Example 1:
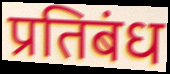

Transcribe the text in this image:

प्रतिबंध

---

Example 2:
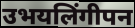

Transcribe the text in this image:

उभयलिंगीपन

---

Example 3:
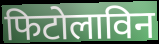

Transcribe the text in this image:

फिटोलाविन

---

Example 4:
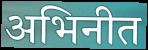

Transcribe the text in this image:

अभिनीत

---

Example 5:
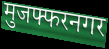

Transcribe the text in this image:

मुजफ्फरनगर